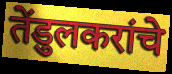
तेंडुलकरांचे